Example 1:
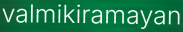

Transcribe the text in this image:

valmikiramayan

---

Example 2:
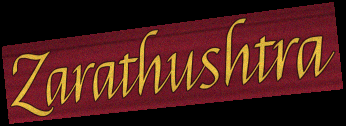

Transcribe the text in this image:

Zarathushtra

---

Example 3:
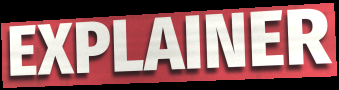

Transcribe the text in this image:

EXPLAINER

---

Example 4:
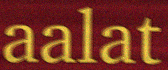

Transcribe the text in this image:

aalat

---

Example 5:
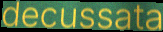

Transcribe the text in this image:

decussata